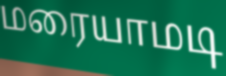
மரையாமடி